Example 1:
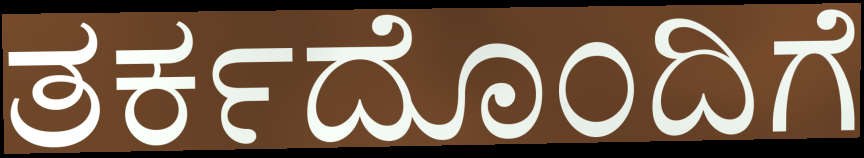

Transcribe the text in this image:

ತರ್ಕದೊಂದಿಗೆ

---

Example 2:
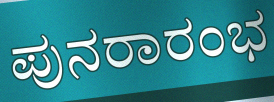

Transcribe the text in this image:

ಪುನರಾರಂಭ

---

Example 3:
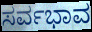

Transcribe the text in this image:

ಸರ್ವಭಾವ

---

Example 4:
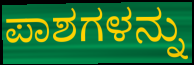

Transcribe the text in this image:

ಪಾಶಗಳನ್ನು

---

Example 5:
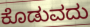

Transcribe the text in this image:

ಕೊಡುವದು